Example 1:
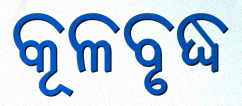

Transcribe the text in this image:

କୂଳବୃଦ୍ଧ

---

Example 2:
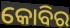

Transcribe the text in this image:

କୋବିର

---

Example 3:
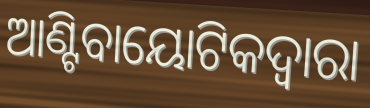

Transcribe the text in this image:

ଆଣ୍ଟିବାୟୋଟିକଦ୍ୱାରା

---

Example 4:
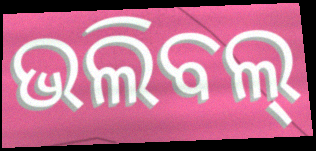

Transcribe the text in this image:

ଭଲିବଲ୍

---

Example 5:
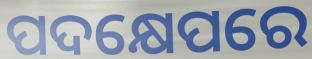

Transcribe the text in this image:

ପଦକ୍ଷେପରେ